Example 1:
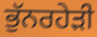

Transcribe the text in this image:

ਭੁੱਨਰਹੇੜੀ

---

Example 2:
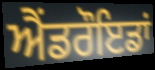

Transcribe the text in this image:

ਐਂਡਰੌਇਡਾਂ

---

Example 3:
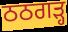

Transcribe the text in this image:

ਠਠਗੜ੍ਹ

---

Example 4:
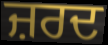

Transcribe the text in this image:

ਜ਼ਰਦ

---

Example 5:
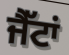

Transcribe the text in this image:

ਜੈੱਟਾਂ